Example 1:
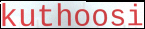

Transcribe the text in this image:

kuthoosi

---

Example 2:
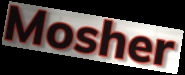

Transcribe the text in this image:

Mosher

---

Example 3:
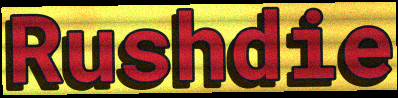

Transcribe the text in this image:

Rushdie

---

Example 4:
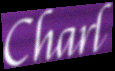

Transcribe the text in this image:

Charl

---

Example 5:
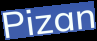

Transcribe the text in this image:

Pizan